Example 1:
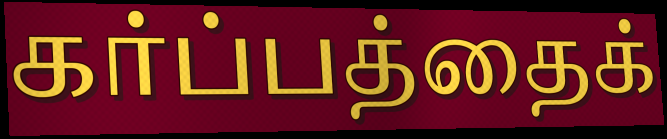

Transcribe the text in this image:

கர்ப்பத்தைக்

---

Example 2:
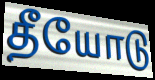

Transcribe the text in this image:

தீயோடு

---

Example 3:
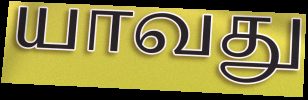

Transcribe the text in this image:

யாவது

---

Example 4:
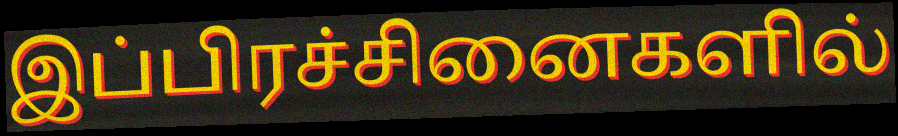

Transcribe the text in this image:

இப்பிரச்சினைகளில்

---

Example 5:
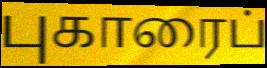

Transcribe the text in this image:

புகாரைப்